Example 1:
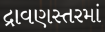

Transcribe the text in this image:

દ્રાવણસ્તરમાં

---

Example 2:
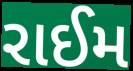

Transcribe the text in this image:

રાઈમ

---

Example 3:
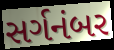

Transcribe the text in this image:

સર્ગનંબર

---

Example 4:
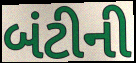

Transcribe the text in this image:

બંટીની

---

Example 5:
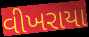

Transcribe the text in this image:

વીખરાયા